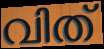
വിത്